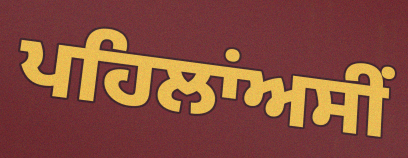
ਪਹਿਲਾਂਅਸੀਂ